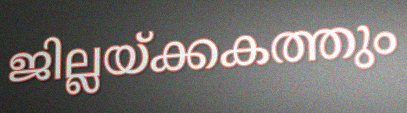
ജില്ലയ്ക്കകത്തും